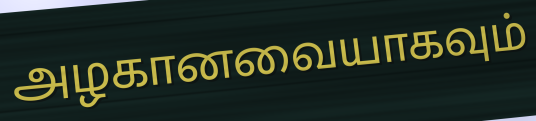
அழகானவையாகவும்